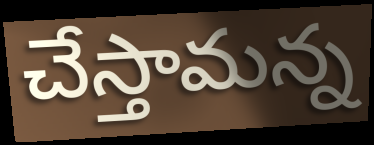
చేస్తామన్న